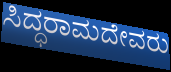
ಸಿದ್ಧರಾಮದೇವರು